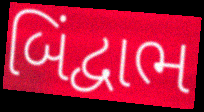
બિંદ્વાભ